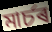
মাৰ্চৰ